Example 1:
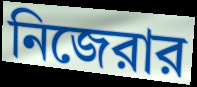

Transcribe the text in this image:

নিজেরার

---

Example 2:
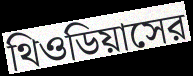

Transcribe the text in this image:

থিওডিয়াসের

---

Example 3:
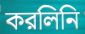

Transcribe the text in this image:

করলিনি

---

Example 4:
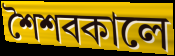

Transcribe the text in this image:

শৈশবকালে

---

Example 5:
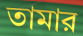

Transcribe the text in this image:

তামার